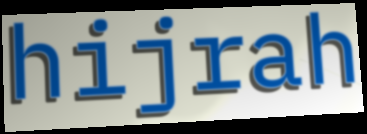
hijrah